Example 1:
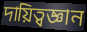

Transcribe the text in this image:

দায়িত্বজ্ঞান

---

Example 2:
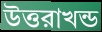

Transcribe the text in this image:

উত্তরাখন্ড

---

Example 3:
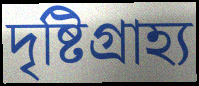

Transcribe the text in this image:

দৃষ্টিগ্রাহ্য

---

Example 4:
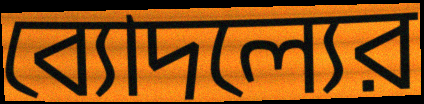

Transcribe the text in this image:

ব্যোদল্যের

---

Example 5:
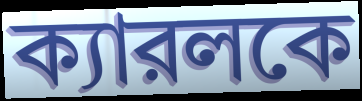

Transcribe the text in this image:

ক্যারলকে